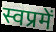
स्वप्रमें